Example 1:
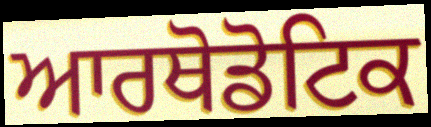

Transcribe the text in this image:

ਆਰਥੋਡੋਟਿਕ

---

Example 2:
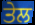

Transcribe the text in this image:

ਤੇਲ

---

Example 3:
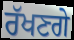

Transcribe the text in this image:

ਰੱਖਣਗੇ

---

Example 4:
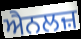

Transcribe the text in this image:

ਐਨਲਜ਼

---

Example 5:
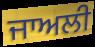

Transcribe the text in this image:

ਜਾਅਲੀ